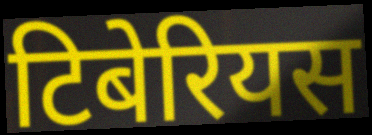
टिबेरियस